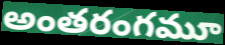
అంతరంగమూ